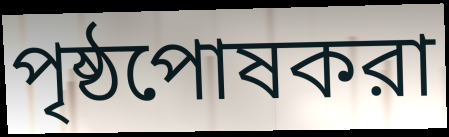
পৃষ্ঠপোষকরা